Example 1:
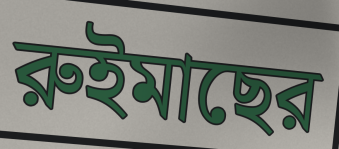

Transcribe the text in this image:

রুইমাছের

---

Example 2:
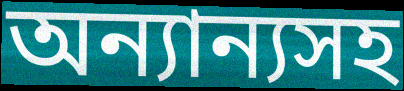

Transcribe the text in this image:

অন্যান্যসহ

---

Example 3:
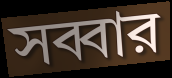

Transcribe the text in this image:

সব্বার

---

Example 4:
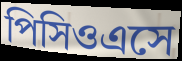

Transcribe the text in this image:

পিসিওএসে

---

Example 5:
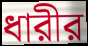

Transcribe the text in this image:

ধারীর